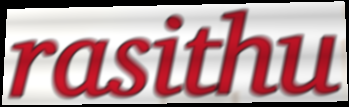
rasithu